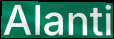
Alanti